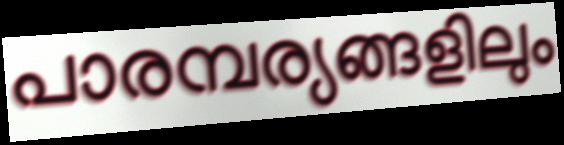
പാരമ്പര്യങ്ങളിലും